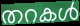
തറകൾ